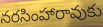
నరసింహారావుకు